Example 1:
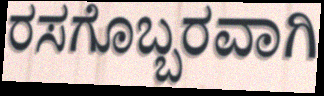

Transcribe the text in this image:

ರಸಗೊಬ್ಬರವಾಗಿ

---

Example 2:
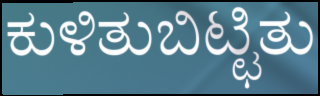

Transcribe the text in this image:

ಕುಳಿತುಬಿಟ್ಟಿತು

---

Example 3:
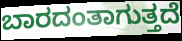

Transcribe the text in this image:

ಬಾರದಂತಾಗುತ್ತದೆ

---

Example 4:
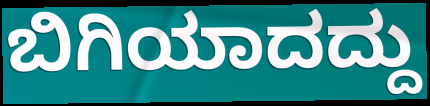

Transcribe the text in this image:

ಬಿಗಿಯಾದದ್ದು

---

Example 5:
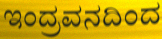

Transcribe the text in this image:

ಇಂದ್ರವನದಿಂದ